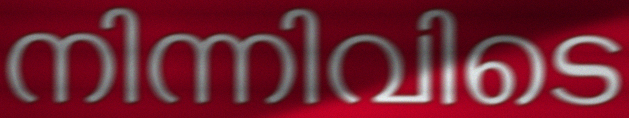
നിന്നിവിടെ